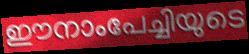
ഈനാംപേച്ചിയുടെ